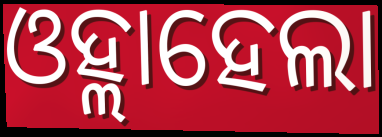
ଓହ୍ଲାହେଲା